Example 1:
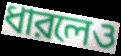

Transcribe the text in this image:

ধারলেও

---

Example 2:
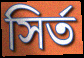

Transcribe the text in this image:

সির্ত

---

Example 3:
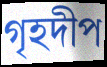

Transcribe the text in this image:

গৃহদীপ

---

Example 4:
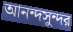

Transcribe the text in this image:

আনন্দসুন্দর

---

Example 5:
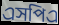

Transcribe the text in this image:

এসপিএ